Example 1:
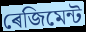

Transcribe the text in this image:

ৰেজিমেন্ট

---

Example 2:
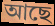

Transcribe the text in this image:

আছে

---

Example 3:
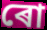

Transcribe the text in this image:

ৰো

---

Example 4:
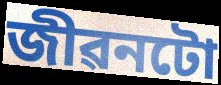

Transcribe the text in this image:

জীৱনটো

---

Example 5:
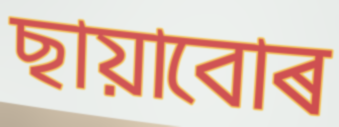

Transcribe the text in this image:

ছায়াবোৰ